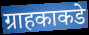
ग्राहकाकडे